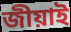
জীয়াই